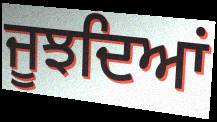
ਜੂਝਦਿਆਂ